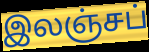
இலஞ்சப்